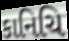
કાનિચિ